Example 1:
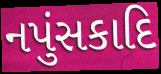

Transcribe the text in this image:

નપુંસકાદિ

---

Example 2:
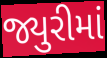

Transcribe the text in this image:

જ્યુરીમાં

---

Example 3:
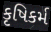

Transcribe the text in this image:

કૃષિકર્મ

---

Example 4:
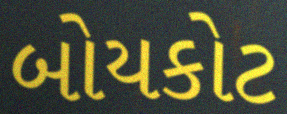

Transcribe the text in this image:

બોયકોટ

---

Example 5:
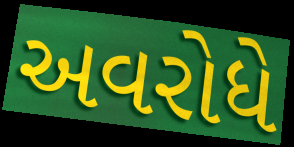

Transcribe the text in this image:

અવરોધે